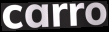
carro